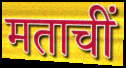
मताचीं